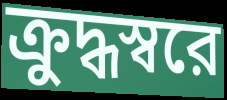
ক্রুদ্ধস্বরে